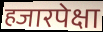
हजारपेक्षा